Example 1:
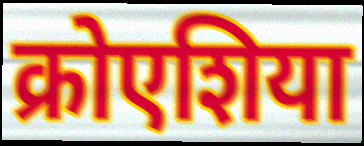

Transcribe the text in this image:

क्रोएशिया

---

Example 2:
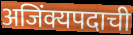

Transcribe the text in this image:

अजिंक्यपदाची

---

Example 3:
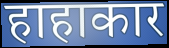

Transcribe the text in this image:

हाहाकार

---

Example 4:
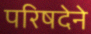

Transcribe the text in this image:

परिषदेने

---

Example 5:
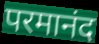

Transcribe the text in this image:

परमानंद